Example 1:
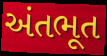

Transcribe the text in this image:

અંતભૂત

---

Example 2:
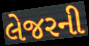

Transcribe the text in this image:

લેજરની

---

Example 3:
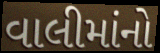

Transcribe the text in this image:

વાલીમાંનો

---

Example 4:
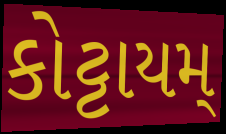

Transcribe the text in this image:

કોટ્ટાયમ્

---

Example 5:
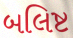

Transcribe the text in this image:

બલિષ્ટ